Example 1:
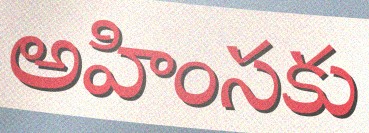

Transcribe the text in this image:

అహింసకు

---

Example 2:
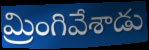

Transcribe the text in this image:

మ్రింగివేశాడు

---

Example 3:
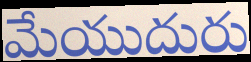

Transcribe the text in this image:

మేయుదురు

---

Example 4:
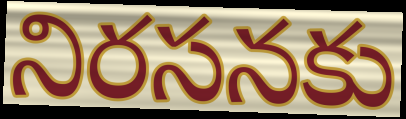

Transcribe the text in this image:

నిరసనకు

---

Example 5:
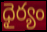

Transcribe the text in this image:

ధైర్యం